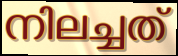
നിലച്ചത്